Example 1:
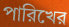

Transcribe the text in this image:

পারিখের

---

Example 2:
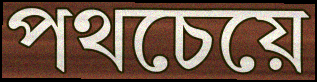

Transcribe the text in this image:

পথচেয়ে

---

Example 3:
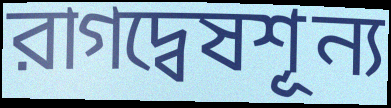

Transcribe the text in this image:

রাগদ্বেষশূন্য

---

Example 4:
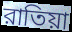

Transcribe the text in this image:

রাতিয়া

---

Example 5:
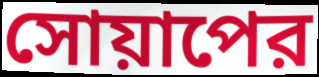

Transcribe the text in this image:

সোয়াপের